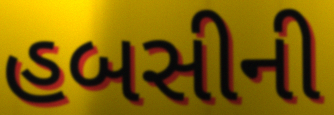
હબસીની